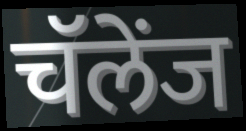
चॅलेंज